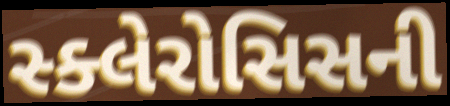
સ્ક્લેરોસિસની